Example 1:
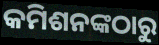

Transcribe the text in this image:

କମିଶନଙ୍କଠାରୁ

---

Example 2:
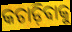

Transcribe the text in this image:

କଚାଡ଼ିବାକୁ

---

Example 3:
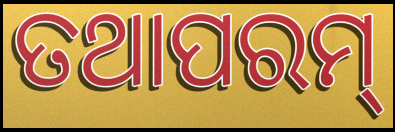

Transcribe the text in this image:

ତଥାପରମ୍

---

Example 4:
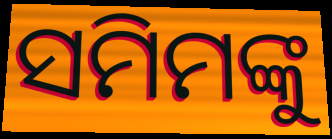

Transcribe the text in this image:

ସମିମଙ୍କୁ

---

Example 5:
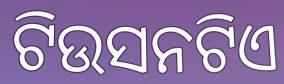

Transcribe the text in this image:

ଟିଉସନଟିଏ